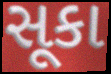
સૂકા